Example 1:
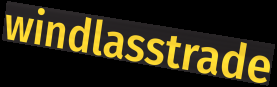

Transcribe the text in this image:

windlasstrade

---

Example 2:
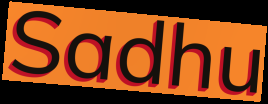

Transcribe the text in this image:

Sadhu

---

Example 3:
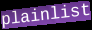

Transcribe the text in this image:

plainlist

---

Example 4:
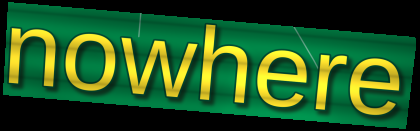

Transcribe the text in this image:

nowhere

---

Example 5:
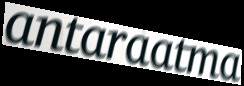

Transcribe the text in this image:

antaraatma